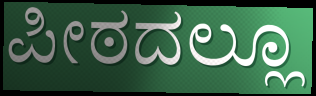
ಪೀಠದಲ್ಲೂ